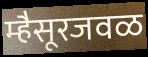
म्हैसूरजवळ